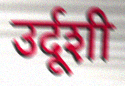
उर्दूशी